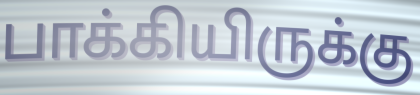
பாக்கியிருக்கு